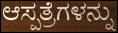
ಆಸ್ಪತ್ರೆಗಳನ್ನು